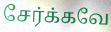
சேர்க்கவே